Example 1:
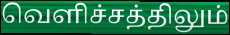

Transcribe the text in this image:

வெளிச்சத்திலும்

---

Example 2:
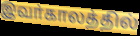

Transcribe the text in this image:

இவர்காலத்தில்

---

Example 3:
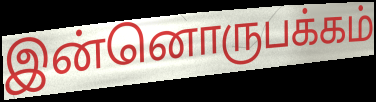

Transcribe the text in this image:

இன்னொருபக்கம்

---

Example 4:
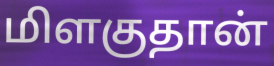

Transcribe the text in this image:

மிளகுதான்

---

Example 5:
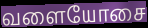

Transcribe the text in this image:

வளையோசை